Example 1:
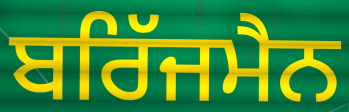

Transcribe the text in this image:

ਬਰਿੱਜਮੈਨ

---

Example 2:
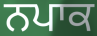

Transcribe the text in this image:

ਨਪਾਕ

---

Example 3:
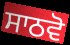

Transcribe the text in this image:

ਸਾਠਵੋ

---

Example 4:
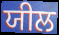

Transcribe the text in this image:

ਯੀਲ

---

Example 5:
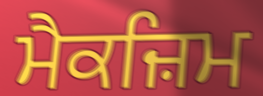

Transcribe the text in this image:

ਮੈਕਜ਼ਿਮ